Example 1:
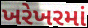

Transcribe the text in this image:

ખરેખરમાં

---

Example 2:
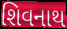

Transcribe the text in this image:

શિવનાથ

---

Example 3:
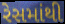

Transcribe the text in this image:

રેસમાંથી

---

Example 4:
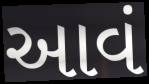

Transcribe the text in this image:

આવં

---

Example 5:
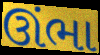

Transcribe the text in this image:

ઊંભા